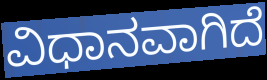
ವಿಧಾನವಾಗಿದೆ